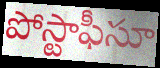
పోస్టాఫీసూ